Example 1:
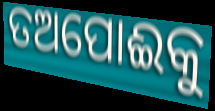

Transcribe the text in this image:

ତଅପୋଈକୁ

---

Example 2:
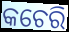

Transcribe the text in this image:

କଚେରି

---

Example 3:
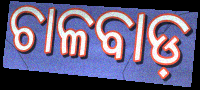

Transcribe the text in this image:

ଚାଳବାଡ଼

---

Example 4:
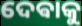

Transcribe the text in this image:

ଦେଵାକୁ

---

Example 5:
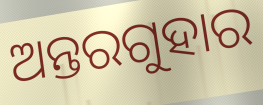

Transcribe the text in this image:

ଅନ୍ତରଗୁହାର